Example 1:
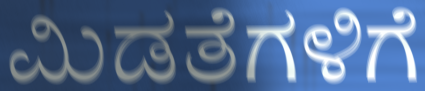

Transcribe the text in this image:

ಮಿಡತೆಗಳಿಗೆ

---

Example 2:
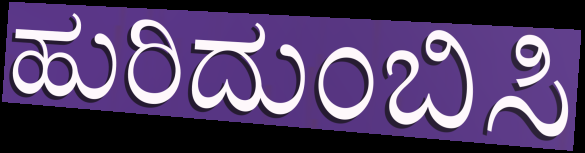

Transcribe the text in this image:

ಹುರಿದುಂಬಿಸಿ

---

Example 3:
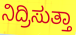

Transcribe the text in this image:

ನಿದ್ರಿಸುತ್ತಾ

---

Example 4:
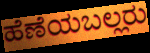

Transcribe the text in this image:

ಹೆಣೆಯಬಲ್ಲರು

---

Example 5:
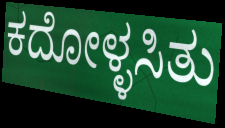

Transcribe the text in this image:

ಕದೋಳ್ಳಸಿತು